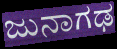
ಜುನಾಗಢ